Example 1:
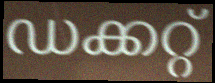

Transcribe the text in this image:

ഡക്കറ്റ്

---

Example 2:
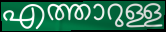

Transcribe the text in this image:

എത്താറുള്ള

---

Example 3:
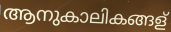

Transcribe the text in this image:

ആനുകാലികങ്ങള്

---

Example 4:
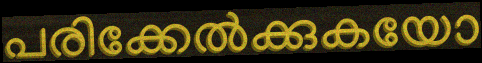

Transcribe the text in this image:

പരിക്കേൽക്കുകയോ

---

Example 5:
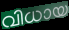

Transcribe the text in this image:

വിധായ